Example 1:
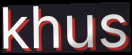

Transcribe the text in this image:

khus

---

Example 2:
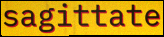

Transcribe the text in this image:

sagittate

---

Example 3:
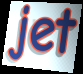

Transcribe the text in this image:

jet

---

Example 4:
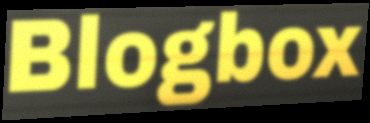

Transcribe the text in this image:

Blogbox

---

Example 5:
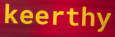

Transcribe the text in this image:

keerthy